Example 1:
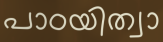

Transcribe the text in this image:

പാഠയിത്വാ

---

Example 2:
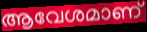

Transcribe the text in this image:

ആവേശമാണ്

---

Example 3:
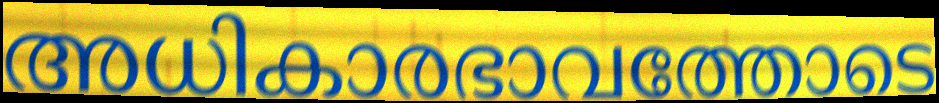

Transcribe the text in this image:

അധികാരഭാവത്തോടെ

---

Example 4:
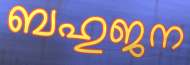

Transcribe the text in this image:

ബഹുജന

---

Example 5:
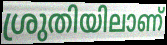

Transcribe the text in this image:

ശ്രുതിയിലാണ്